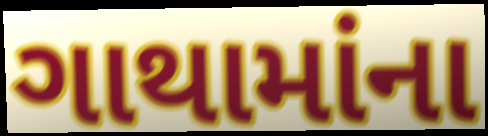
ગાથામાંના